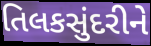
તિલકસુંદરીને